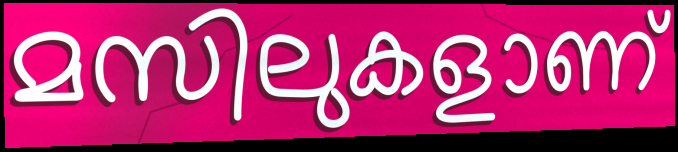
മസിലുകളാണ്